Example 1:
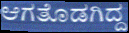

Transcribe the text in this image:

ಆಗತೊಡಗಿದ್ದ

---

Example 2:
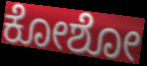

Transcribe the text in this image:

ಕೋಶೋ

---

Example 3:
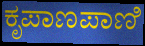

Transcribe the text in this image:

ಕೃಪಾಣಪಾಣಿ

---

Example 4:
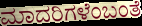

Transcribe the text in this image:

ಮಾದರಿಗಳೆಂಬಂತೆ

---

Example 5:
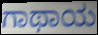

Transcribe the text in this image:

ಗಾಥಾಯ